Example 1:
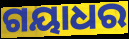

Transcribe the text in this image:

ଗୟାଧର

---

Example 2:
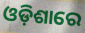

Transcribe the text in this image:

ଓଡ଼ିଶାରେ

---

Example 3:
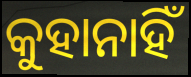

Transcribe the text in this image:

କୁହାନାହିଁ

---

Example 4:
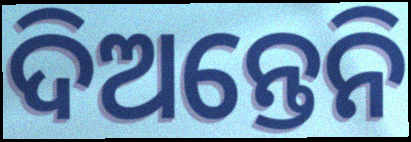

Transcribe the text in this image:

ଦିଅନ୍ତେନି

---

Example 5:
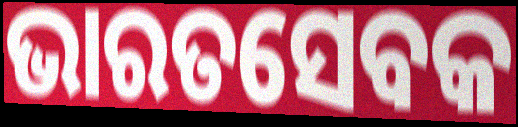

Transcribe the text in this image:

ଭାରତସେବକ